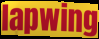
lapwing